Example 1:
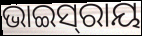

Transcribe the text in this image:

ଭାଇସ୍‍ରାୟ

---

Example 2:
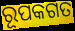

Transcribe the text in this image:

ରୂପକଗତ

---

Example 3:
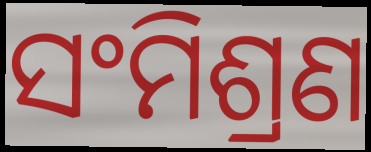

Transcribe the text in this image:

ସଂମିଶ୍ରଣ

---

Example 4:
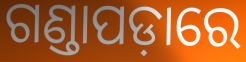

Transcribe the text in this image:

ଗଣ୍ଡାପଡ଼ାରେ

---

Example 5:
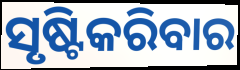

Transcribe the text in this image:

ସୃଷ୍ଟିକରିବାର